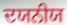
ਦਯਨੀਯ